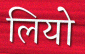
लियो